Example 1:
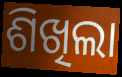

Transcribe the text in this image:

ଶିଖିଲା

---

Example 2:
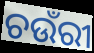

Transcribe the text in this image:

ଚଉଁରୀ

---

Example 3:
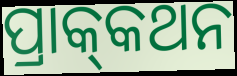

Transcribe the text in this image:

ପ୍ରାକ୍‌କଥନ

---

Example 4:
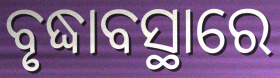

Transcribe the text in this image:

ବୃଦ୍ଧାବସ୍ଥାରେ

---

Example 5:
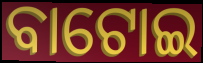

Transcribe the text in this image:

ବାଟୋଇ